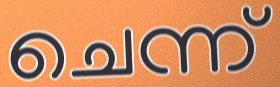
ചെന്ന്